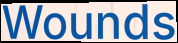
Wounds